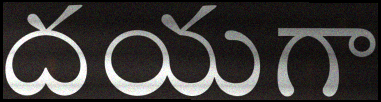
దయగా